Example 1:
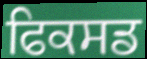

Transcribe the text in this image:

ਫਿਕਸਡ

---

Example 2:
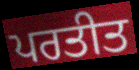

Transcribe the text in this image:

ਪਰਤੀਤ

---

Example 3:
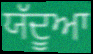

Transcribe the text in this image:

ਯੱਦੂਆ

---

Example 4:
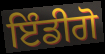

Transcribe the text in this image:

ਇੰਡੀਗੋ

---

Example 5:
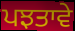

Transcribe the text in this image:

ਪਝਤਾਵੇ